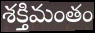
శక్తిమంతం